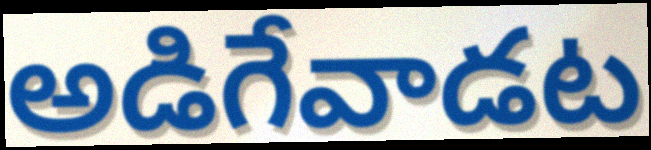
అడిగేవాడట